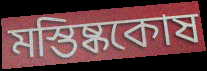
মস্তিষ্ককোষ